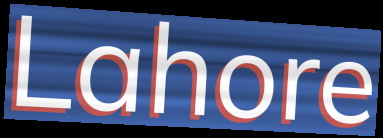
Lahore